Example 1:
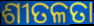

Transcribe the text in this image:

ଶୀତଳତା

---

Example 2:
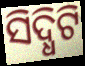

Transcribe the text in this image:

ସିଦ୍ଧିଟି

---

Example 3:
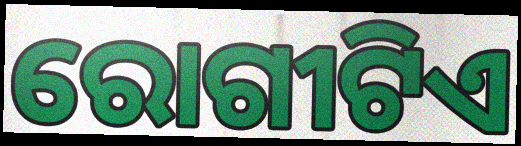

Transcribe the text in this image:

ରୋଗୀଟିଏ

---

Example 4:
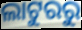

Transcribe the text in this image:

ଲାଟୁରରୁ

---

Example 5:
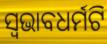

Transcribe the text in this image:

ସ୍ଵଭାବଧର୍ମଟି